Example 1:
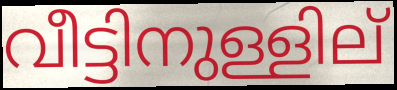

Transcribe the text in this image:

വീട്ടിനുള്ളില്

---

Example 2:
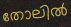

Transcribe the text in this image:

തോലിൽ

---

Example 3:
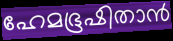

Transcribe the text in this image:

ഹേമഭൂഷിതാൻ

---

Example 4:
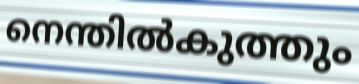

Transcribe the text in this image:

നെന്തിൽകുത്തും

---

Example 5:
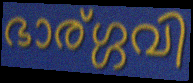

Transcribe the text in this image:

ഭാര്ഗ്ഗവി